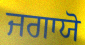
ਜਗਾਯੋ